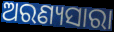
ଅରଣ୍ୟସାରା